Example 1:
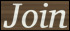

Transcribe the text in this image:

Join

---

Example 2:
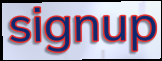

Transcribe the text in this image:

signup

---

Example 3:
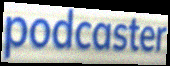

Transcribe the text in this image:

podcaster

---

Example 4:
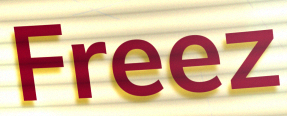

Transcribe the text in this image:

Freez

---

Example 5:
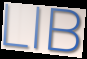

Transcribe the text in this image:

LIB